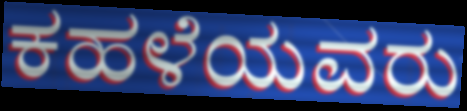
ಕಹಳೆಯವರು